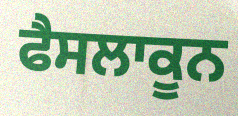
ਫੈਸਲਾਕੂਨ